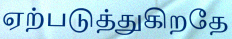
ஏற்படுத்துகிறதே